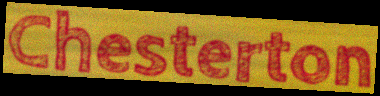
Chesterton